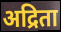
अद्रिता